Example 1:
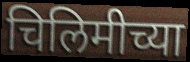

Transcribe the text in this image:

चिलिमीच्या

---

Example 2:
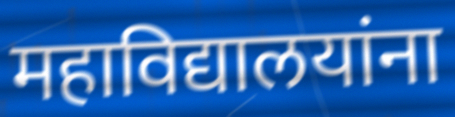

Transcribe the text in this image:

महाविद्यालयांना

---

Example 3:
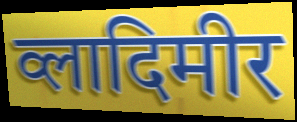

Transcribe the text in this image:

व्लादिमीर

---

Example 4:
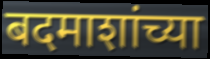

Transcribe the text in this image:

बदमाशांच्या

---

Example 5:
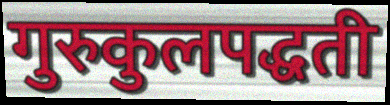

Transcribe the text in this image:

गुरुकुलपद्धती